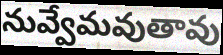
నువ్వేమవుతావు